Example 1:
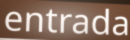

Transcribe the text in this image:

entrada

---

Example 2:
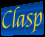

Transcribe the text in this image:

Clasp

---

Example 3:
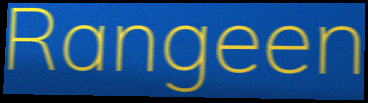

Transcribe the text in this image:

Rangeen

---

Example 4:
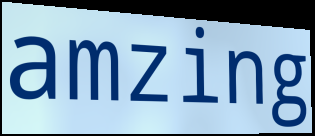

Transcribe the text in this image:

amzing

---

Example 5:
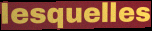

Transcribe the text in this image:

lesquelles